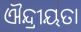
ଐନ୍ଦ୍ରୀୟତା